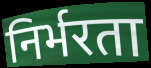
निर्भरता